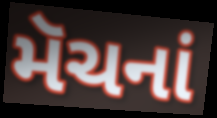
મૅચનાં